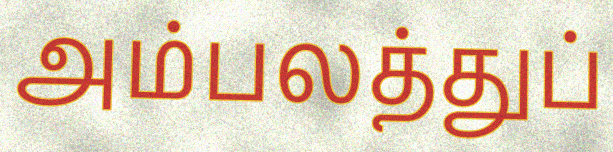
அம்பலத்துப்